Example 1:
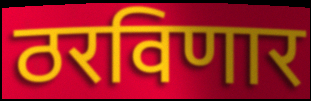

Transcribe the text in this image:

ठरविणार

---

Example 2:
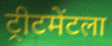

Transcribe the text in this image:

ट्रीटमेंटला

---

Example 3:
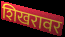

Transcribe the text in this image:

शिखरावर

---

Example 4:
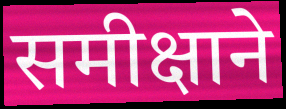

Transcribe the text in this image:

समीक्षाने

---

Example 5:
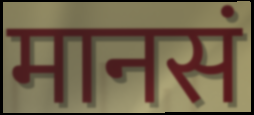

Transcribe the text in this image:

मानसं